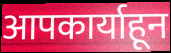
आपकार्याहून